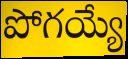
పోగయ్యే